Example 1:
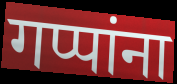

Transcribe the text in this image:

गप्पांना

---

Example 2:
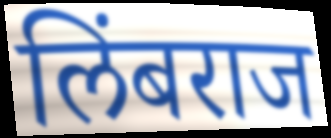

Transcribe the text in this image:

लिंबराज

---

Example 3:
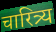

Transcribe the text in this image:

चारित्र्य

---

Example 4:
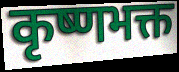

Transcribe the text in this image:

कृष्णभक्त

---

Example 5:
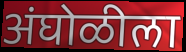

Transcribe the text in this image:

अंघोळीला